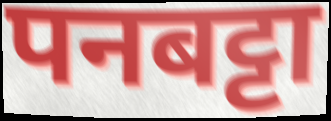
पनबट्टा